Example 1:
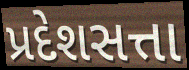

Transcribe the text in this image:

પ્રદેશસત્તા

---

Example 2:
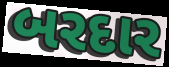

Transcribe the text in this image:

બરદાર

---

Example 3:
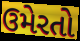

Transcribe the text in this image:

ઉમેરતો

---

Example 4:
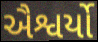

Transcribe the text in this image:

ઐશ્વર્યો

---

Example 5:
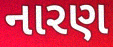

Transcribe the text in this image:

નારણ